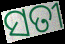
ସତୀ